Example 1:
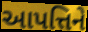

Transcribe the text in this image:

આપત્તિને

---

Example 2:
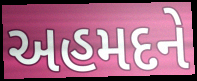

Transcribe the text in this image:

અહમદને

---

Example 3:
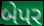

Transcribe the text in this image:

બેપર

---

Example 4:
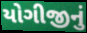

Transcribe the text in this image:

યોગીજીનું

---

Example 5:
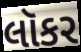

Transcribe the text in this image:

લૉકર